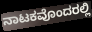
ನಾಟಕವೊಂದರಲ್ಲಿ